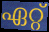
ഏറ്റ്